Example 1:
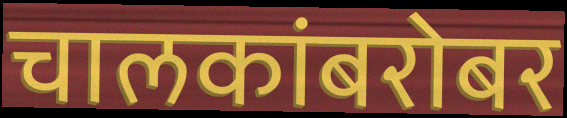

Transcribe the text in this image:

चालकांबरोबर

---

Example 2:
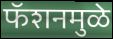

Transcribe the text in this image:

फॅशनमुळे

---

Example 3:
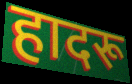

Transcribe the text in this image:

हादरू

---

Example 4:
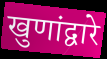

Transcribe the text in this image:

खुणांद्वारे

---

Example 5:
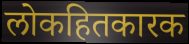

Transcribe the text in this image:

लोकहितकारक